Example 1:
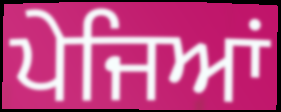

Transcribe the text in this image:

ਪੇਜਿਆਂ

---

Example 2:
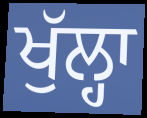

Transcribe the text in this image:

ਖੁੱਲ੍ਹਾ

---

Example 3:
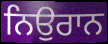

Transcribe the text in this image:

ਨਿਉਰਾਨ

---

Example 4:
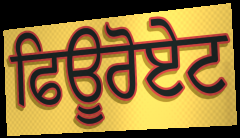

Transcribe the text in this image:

ਫਿਊਰੋਏਟ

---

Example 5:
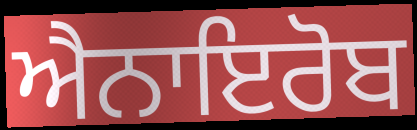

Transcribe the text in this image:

ਐਨਾਇਰੋਬ